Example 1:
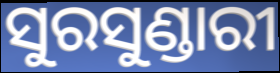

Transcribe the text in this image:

ସୁରସୁଣ୍ଡାରୀ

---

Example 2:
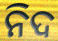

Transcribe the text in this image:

ନିଦ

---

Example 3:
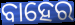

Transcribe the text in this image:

ବାହେର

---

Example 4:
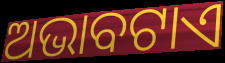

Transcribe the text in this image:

ଅଭାବଟାଏ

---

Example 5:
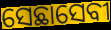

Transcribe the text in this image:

ସେଛାସେବୀ